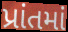
પ્રાંતમાં